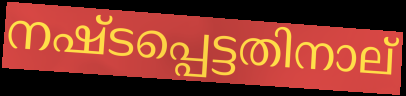
നഷ്ടപ്പെട്ടതിനാല്